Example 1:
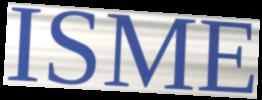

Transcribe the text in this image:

ISME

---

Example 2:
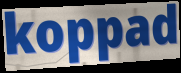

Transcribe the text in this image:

koppad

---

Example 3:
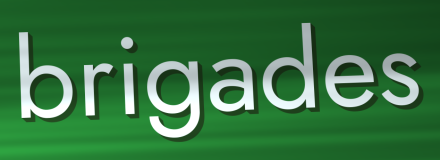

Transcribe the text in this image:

brigades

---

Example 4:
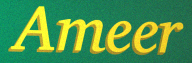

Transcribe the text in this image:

Ameer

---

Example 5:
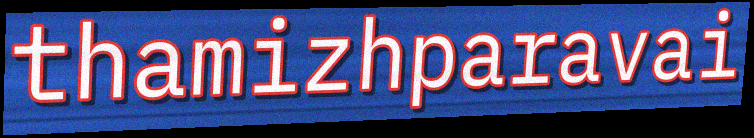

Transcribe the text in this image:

thamizhparavai